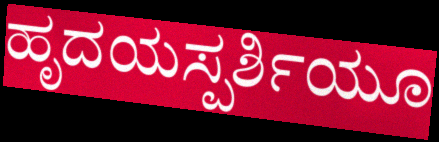
ಹೃದಯಸ್ಪರ್ಶಿಯೂ